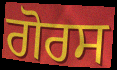
ਗੋਰਸ